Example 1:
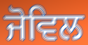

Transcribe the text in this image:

ਜੋਵਿਲ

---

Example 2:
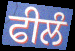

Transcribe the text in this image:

ਫੀਲੰ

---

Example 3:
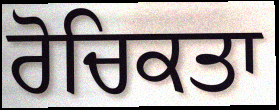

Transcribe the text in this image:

ਰੋਚਿਕਤਾ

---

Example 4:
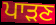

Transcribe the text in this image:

ਪਾੜਣ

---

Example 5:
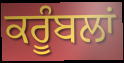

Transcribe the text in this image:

ਕਰੂੰਬਲਾਂ